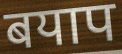
बयाप